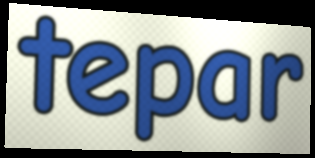
tepar